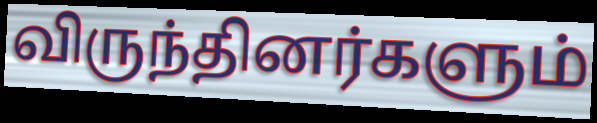
விருந்தினர்களும்